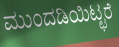
ಮುಂದಡಿಯಿಟ್ಟರೆ